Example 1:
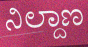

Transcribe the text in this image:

ನಿಲ್ದಾಣ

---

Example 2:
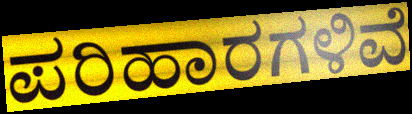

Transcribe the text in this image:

ಪರಿಹಾರಗಳಿವೆ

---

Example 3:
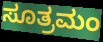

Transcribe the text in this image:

ಸೂತ್ರಮಂ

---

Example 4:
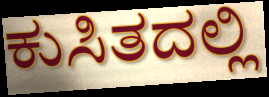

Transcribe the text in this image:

ಕುಸಿತದಲ್ಲಿ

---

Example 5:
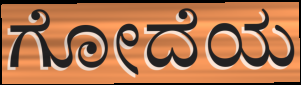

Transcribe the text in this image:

ಗೋದೆಯ